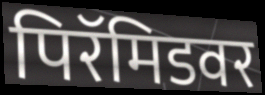
पिरॅमिडवर